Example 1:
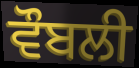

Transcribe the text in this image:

ਵੌਬਲੀ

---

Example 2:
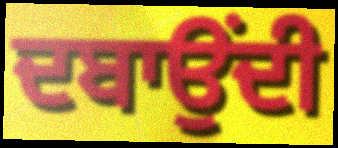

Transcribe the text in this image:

ਦਬਾਉਂਦੀ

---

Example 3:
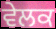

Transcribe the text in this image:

ਵੇਲਕ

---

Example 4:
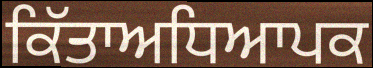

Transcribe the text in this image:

ਕਿੱਤਾਅਧਿਆਪਕ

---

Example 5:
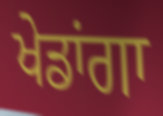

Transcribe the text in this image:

ਖੇਡਾਂਗਾ